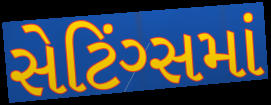
સેટિંગ્સમાં